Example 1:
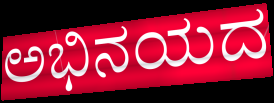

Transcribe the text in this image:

ಅಭಿನಯದ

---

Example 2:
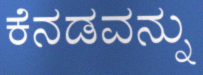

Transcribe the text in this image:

ಕೆನಡವನ್ನು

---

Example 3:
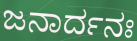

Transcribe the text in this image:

ಜನಾರ್ದನಃ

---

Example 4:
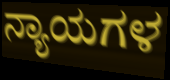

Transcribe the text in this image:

ನ್ಯಾಯಗಳ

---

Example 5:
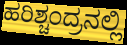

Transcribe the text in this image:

ಹರಿಶ್ಚಂದ್ರನಲ್ಲಿ